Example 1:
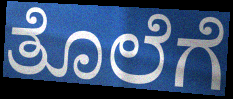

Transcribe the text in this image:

ತೊಲೆಗೆ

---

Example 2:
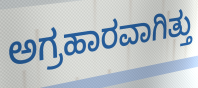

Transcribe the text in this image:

ಅಗ್ರಹಾರವಾಗಿತ್ತು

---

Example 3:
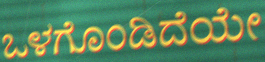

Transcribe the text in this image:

ಒಳಗೊಂಡಿದೆಯೇ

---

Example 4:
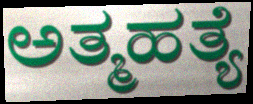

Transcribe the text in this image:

ಅತ್ಮಹತ್ಯೆ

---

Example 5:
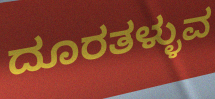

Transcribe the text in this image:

ದೂರತಳ್ಳುವ